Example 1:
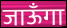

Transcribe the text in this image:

जाऊँगा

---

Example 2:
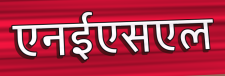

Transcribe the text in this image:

एनईएसएल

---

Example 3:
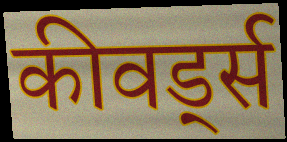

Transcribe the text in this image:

कीवर्ड्स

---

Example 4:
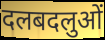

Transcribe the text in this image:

दलबदलुओं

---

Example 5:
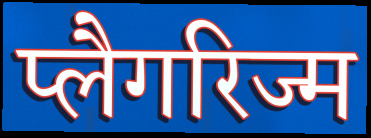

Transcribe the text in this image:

प्लैगरिज्म